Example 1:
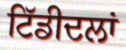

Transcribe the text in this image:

ਟਿੱਡੀਦਲਾਂ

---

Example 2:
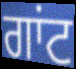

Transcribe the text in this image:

ਗਾਂਟ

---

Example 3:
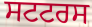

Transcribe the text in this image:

ਸਟਟਰਸ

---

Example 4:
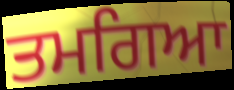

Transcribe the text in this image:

ਤਮਗਿਆ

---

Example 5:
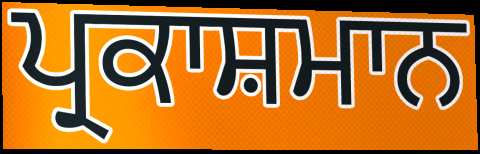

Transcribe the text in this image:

ਪ੍ਰਕਾਸ਼ਮਾਨ